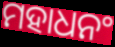
ମହାଧନଂ